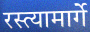
रस्त्यामार्गे